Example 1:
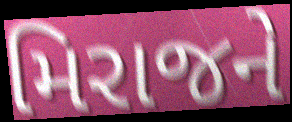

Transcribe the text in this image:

મિરાજને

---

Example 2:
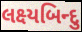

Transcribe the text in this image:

લક્ષ્યબિન્દુ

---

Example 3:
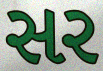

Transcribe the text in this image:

સર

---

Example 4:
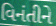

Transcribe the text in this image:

વિનંતીને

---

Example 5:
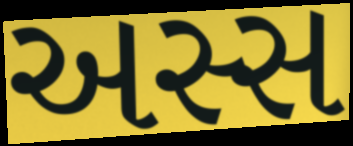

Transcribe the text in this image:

અસ્સ